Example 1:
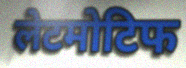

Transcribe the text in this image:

लेटमोटिफ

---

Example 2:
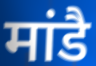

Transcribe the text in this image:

मांडै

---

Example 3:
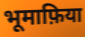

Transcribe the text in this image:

भूमाफ़िया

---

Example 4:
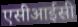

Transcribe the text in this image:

एसीआईसी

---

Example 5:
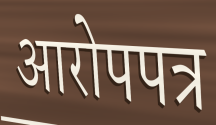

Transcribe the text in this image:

आरोपपत्र